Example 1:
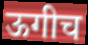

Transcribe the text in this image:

ऊगीच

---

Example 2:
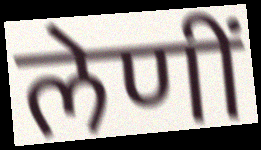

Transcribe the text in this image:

लेणीं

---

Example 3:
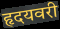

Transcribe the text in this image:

हृदयवरी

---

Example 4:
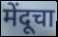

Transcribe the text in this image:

मेंदूचा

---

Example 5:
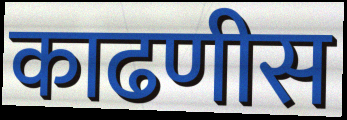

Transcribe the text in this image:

काढणीस